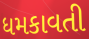
ધમકાવતી